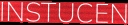
INSTUCEN